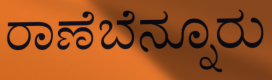
ರಾಣೆಬೆನ್ನೂರು